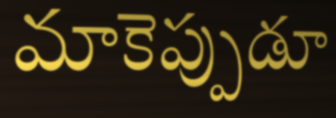
మాకెప్పుడూ